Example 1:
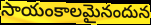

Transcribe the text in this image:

సాయంకాలమైనందున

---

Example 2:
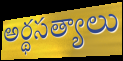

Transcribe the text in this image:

అర్థసత్యాలు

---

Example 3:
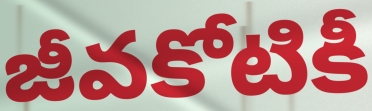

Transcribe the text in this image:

జీవకోటికీ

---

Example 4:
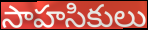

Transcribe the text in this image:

సాహసికులు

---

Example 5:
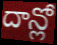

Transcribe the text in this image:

దాన్లో